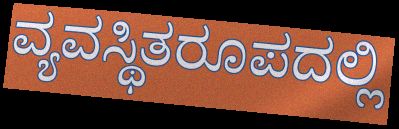
ವ್ಯವಸ್ಥಿತರೂಪದಲ್ಲಿ